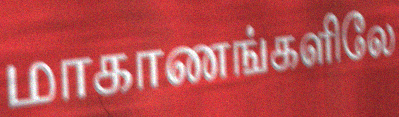
மாகாணங்களிலே